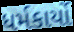
ધર્મકાર્યો